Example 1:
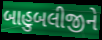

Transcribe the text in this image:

બાહુબલીજીને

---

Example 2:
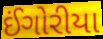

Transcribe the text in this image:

ઈંગોરીયા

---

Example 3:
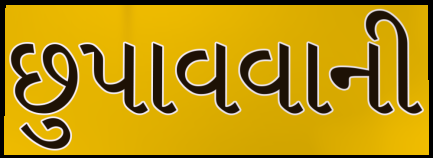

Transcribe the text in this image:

છુપાવવાની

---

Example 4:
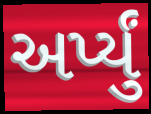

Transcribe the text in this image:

અર્પ્યું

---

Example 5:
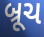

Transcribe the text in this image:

બ્રૂચ